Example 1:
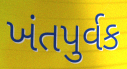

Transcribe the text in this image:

ખંતપુર્વક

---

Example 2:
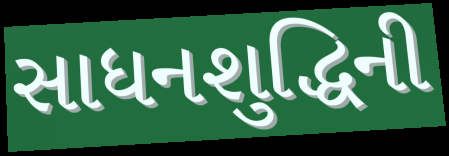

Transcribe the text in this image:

સાધનશુદ્ધિની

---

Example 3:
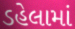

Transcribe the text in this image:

ડહેલામાં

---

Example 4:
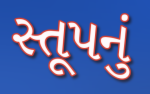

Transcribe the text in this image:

સ્તૂપનું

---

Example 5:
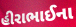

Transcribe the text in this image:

હીરાભાઈના